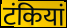
टंकियां